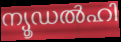
ന്യൂഡൽഹി